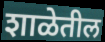
शाळेतील